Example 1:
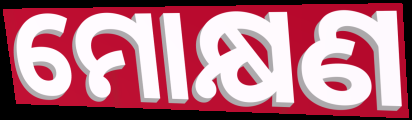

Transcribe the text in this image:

ମୋକ୍ଷଣ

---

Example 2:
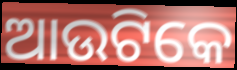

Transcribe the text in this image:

ଆଉଟିକେ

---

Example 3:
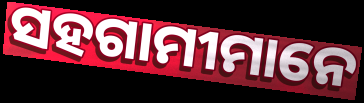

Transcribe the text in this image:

ସହଗାମୀମାନେ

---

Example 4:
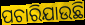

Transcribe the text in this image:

ପଚାରିଯାଉଛି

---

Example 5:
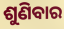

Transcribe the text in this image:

ଶୁଣିବାର